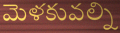
మెళకువల్ని